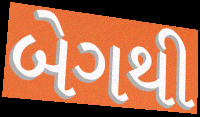
બેગથી